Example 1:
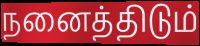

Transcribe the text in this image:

நனைத்திடும்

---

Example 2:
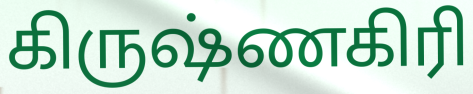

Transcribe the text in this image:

கிருஷ்ணகிரி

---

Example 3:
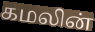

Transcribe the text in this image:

கமலின்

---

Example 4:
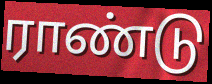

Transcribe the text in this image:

ராண்டு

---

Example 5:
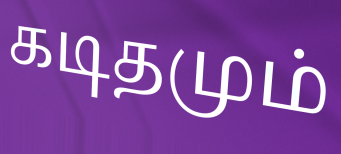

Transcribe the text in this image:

கடிதமும்